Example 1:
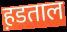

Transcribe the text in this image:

ह़डताल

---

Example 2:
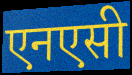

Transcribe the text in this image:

एनएसी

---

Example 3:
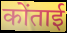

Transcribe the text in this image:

कोंताई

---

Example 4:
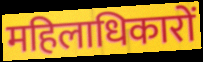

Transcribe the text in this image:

महिलाधिकारों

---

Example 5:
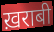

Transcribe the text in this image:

ख़राबी